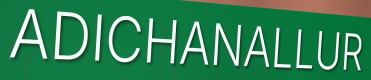
ADICHANALLUR